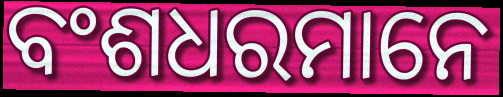
ବଂଶଧରମାନେ